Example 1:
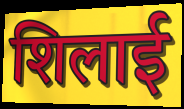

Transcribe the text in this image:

शिलाई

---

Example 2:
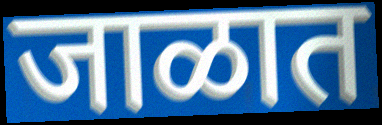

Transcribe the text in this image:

जाळात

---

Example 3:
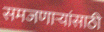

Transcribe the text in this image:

समजणाऱ्यांसाठी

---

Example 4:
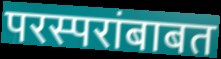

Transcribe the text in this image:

परस्परांबाबत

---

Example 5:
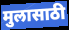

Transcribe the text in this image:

मुलासाठी